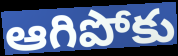
ఆగిపోకు